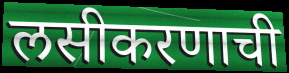
लसीकरणाची